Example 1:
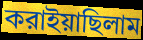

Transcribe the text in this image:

করাইয়াছিলাম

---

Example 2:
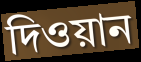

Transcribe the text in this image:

দিওয়ান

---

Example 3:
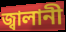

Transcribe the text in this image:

জ্বালানী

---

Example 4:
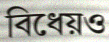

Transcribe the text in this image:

বিধেয়ও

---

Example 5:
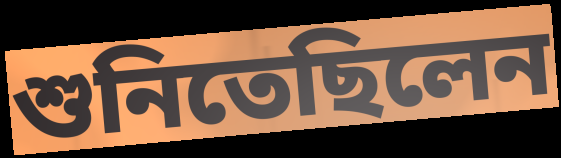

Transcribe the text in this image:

শুনিতেছিলেন